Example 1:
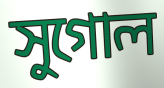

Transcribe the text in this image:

সুগোল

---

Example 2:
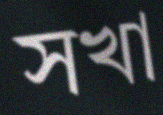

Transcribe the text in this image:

সখা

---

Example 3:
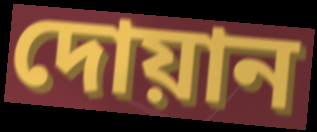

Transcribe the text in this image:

দোয়ান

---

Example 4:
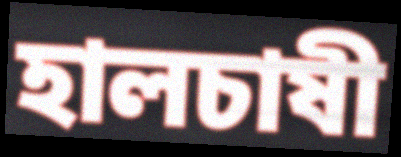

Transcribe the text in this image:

হালচাষী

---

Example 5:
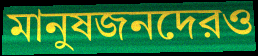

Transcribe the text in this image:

মানুষজনদেরও